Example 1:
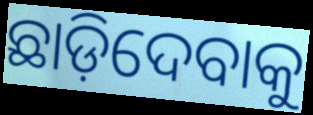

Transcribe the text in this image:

ଛାଡ଼ିଦେବାକୁ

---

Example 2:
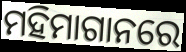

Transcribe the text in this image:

ମହିମାଗାନରେ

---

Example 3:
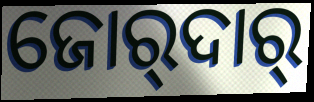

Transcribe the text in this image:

ଜୋର୍‍ଦାର୍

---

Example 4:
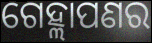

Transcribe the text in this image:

ଗେହ୍ଲାପଣର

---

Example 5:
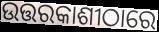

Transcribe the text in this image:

ଉତ୍ତରକାଶୀଠାରେ